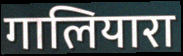
गालियारा